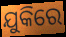
ଯୁକିରେ